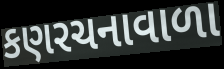
કણરચનાવાળા